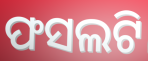
ଫସଲଟି